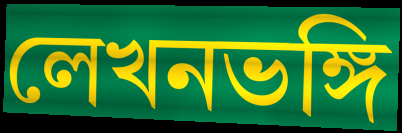
লেখনভঙ্গি